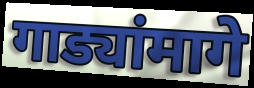
गाड्यांमागे